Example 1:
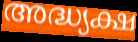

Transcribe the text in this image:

അദ്ധ്യക്ഷ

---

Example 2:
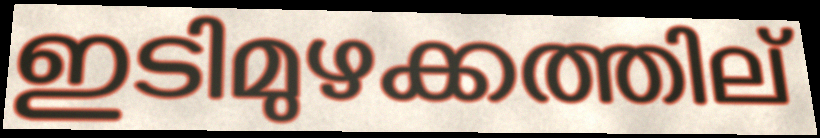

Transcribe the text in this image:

ഇടിമുഴക്കത്തില്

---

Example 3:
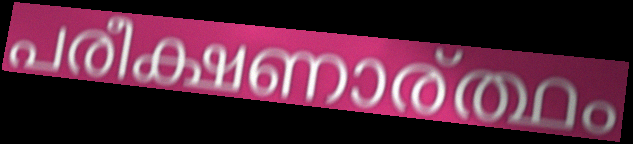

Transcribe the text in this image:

പരീക്ഷണാര്ത്ഥം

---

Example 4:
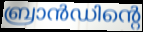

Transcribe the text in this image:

ബ്രാൻഡിന്റെ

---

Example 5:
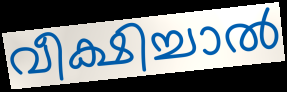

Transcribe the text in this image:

വീക്ഷിച്ചാൽ